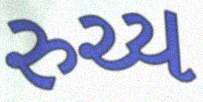
રુચ્ય